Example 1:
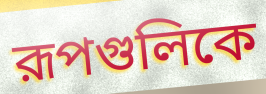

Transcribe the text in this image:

রূপগুলিকে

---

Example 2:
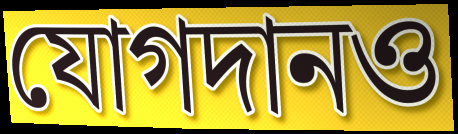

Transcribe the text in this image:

যোগদানও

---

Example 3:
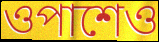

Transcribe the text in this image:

ওপাশেও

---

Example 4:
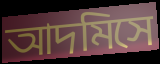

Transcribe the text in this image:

আদমিসে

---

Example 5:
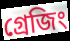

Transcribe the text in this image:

গ্রেজিং